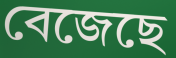
বেজেছে